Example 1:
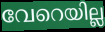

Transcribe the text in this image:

വേറെയില്ല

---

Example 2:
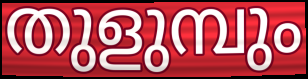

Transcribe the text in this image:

തുളുമ്പും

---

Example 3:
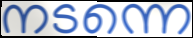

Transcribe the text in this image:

നടന്നെ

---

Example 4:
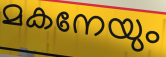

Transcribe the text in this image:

മകനേയും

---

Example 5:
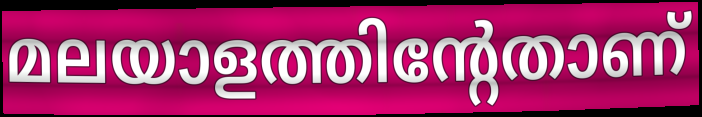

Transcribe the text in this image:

മലയാളത്തിന്റേതാണ്